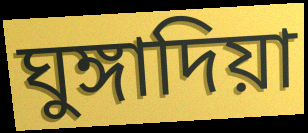
ঘুঙ্গাদিয়া